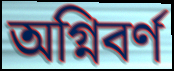
অগ্নিবর্ণ